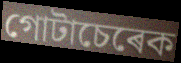
গোটাচেৰেক